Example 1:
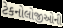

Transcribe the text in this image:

ટેકનોલોજીઓની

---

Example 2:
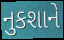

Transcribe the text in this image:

નુકશાને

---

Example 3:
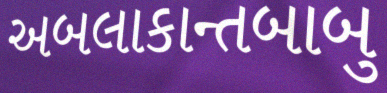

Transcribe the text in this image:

અબલાકાન્તબાબુ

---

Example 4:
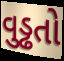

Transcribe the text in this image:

વુડ્ઢતો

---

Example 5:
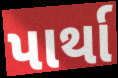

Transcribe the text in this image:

પાર્થા